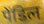
पेंडिल